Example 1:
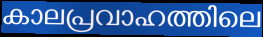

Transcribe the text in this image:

കാലപ്രവാഹത്തിലെ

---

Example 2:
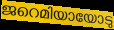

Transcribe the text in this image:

ജറെമിയായോടു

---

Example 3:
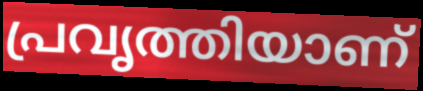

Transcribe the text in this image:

പ്രവൃത്തിയാണ്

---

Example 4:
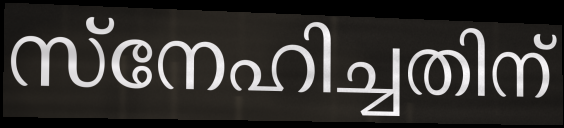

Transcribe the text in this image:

സ്നേഹിച്ചതിന്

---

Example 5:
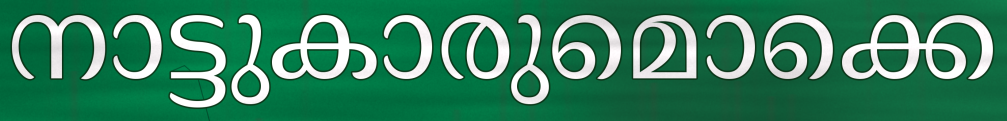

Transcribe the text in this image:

നാട്ടുകാരുമൊക്കെ